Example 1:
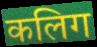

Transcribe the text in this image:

कलिग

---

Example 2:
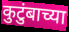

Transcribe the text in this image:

कुटुंबाच्या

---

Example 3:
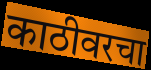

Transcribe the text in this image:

काठीवरचा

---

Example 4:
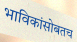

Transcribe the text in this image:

भाविकांसोबतच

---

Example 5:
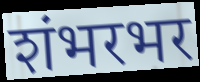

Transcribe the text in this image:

शंभरभर